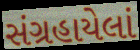
સંગ્રહાયેલાં